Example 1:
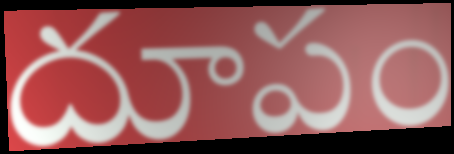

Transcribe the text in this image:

దూపం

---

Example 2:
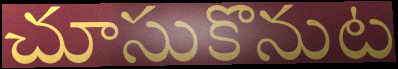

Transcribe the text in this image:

చూసుకొనుట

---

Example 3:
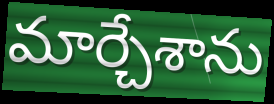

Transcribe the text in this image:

మార్చేశాను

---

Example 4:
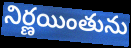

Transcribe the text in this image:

నిర్ణయింతును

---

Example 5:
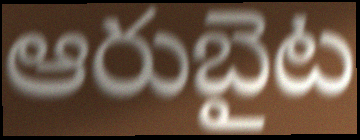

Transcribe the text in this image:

ఆరుబైట